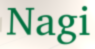
Nagi